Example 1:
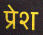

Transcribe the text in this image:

प्रेश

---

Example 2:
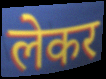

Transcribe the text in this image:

लेकर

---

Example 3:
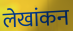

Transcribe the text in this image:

लेखांकन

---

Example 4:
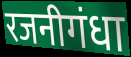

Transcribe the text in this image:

रजनीगंधा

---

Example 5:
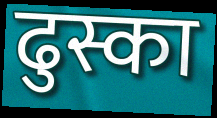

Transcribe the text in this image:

ढुस्का